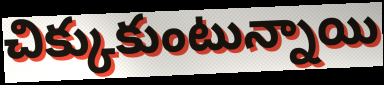
చిక్కుకుంటున్నాయి